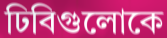
ঢিবিগুলোকে